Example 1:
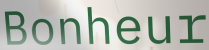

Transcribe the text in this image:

Bonheur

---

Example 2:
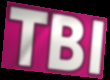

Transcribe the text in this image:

TBI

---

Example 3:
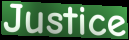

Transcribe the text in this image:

Justice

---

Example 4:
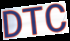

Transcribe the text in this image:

DTC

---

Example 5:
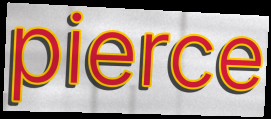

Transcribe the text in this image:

pierce